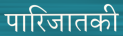
पारिजातकी